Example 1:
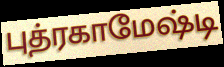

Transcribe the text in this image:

புத்ரகாமேஷ்டி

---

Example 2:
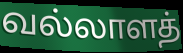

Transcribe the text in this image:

வல்லாளத்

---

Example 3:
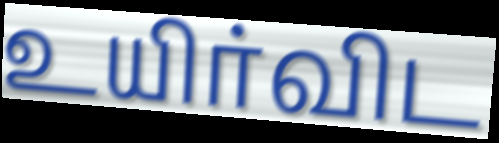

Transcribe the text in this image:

உயிர்விட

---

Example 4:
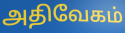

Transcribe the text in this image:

அதிவேகம்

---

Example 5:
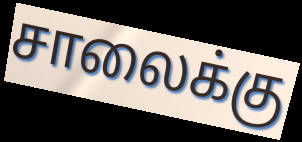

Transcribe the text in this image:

சாலைக்கு